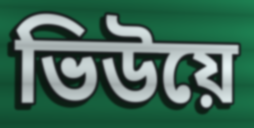
ভিউয়ে